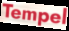
Tempel